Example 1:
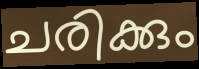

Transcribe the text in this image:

ചരിക്കും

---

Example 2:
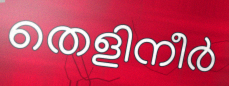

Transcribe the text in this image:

തെളിനീർ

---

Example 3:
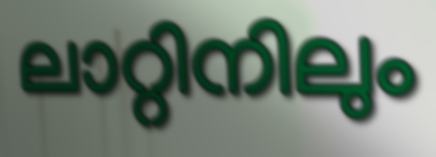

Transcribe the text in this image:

ലാറ്റിനിലും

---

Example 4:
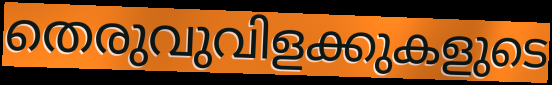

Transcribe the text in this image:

തെരുവുവിളക്കുകളുടെ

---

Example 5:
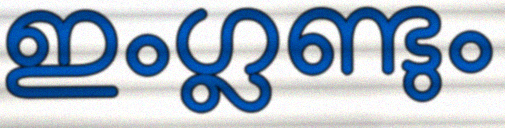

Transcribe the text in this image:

ഇംഗ്ലണ്ടും